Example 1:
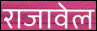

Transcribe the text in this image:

राजावेल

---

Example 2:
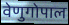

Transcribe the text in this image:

वेणुगोपाल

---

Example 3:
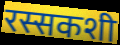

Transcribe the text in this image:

रस्सकशी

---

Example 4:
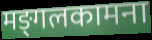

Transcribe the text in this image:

मङ्गलकामना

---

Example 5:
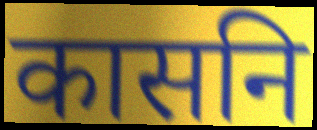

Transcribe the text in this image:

कासनि